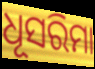
ଧୂସରିମା